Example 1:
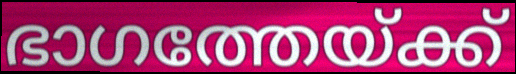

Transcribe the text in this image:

ഭാഗത്തേയ്ക്ക്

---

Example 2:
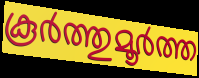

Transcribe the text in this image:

കൂർത്തുമൂർത്ത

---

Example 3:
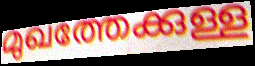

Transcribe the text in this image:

മുഖത്തേക്കുള്ള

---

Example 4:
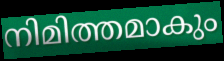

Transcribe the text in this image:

നിമിത്തമാകും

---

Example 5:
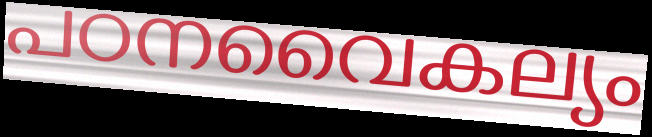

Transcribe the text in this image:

പഠനവൈകല്യം